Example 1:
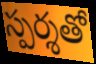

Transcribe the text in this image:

స్పర్శతో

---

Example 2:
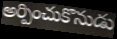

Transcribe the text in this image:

అర్పించుకొనుడు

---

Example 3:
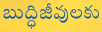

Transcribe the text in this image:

బుద్ధిజీవులకు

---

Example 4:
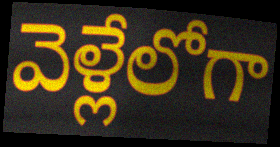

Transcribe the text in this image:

వెళ్లేలోగా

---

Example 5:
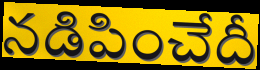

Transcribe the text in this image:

నడిపించేదీ